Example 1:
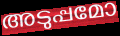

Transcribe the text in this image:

അടുപ്പമോ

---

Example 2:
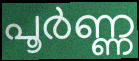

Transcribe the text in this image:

പൂർണ്ണ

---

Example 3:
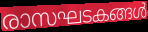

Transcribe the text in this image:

രാസഘടകങ്ങൾ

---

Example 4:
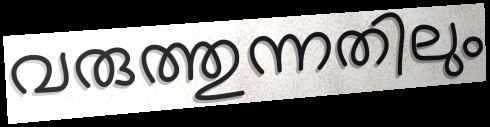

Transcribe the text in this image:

വരുത്തുന്നതിലും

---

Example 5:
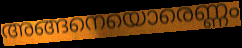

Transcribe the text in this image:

അങ്ങനെയൊരെണ്ണം